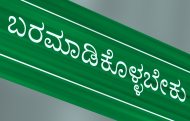
ಬರಮಾಡಿಕೊಳ್ಳಬೇಕು